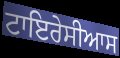
ਟਾਇਰੇਸੀਆਸ